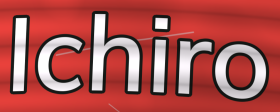
Ichiro